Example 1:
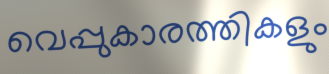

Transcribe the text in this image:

വെപ്പുകാരത്തികളും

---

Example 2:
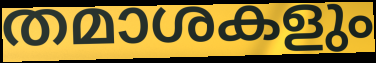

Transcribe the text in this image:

തമാശകളും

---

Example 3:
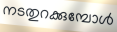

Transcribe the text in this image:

നടതുറക്കുമ്പോൾ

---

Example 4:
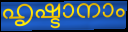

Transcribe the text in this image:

ഹൃഷ്ടാനാം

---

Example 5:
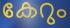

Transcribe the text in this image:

കേറും